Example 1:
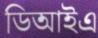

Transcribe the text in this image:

ডিআইএ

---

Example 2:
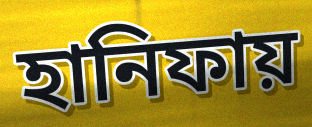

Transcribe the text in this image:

হানিফায়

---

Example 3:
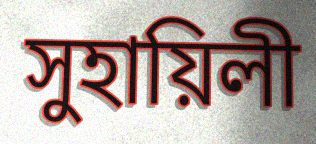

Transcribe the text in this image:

সুহায়িলী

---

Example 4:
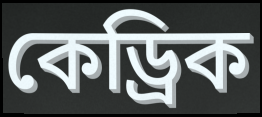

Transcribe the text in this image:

কেড্রিক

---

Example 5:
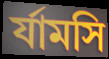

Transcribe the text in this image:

র্যামসি